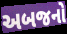
અબજનો